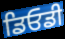
ਡਿਓਡੀ